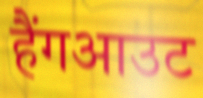
हैंगआउट